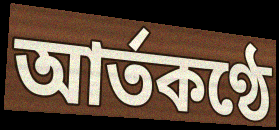
আর্তকণ্ঠে